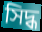
সিদ্ধ